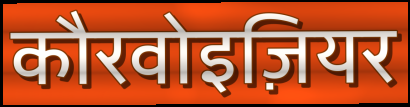
कौरवोइज़ियर